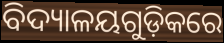
ବିଦ୍ୟାଳୟଗୁଡ଼ିକରେ